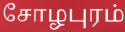
சோழபுரம்